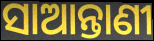
ସାଆନ୍ତାଣୀ